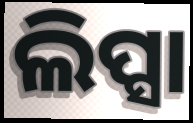
ଲିପ୍ସା